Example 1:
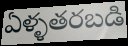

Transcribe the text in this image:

ఏళ్ళతరబడి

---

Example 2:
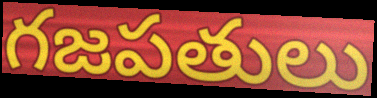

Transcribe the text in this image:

గజపతులు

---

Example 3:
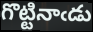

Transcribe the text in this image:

గొట్టినాఁడు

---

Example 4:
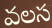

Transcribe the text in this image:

వలస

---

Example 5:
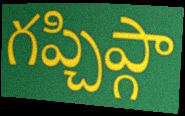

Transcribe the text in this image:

గప్చిప్గా